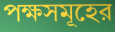
পক্ষসমূহের